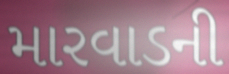
મારવાડની